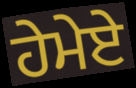
ਹੇਮੇਏ